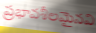
ప్రభావశీలమైనవి